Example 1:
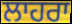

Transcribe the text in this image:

ਲਾਹਰਾ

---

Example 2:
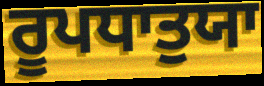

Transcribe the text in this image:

ਰੂਪਧਾਤੁਯਾ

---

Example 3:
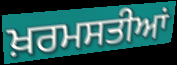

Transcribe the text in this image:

ਖ਼ਰਮਸਤੀਆਂ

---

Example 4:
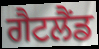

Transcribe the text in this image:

ਗੈਟਲੈਂਡ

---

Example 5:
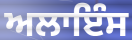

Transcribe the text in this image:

ਅਲਾਇੰਸ